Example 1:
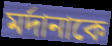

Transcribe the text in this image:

মর্দানাকে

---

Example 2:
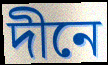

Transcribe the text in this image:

দীনে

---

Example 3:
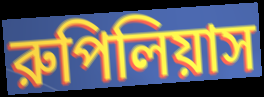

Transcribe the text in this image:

রুপিলিয়াস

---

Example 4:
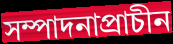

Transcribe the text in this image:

সম্পাদনাপ্রাচীন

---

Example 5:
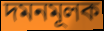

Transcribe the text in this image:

দমনমূলক